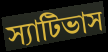
স্যাটিভাস